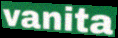
vanita